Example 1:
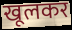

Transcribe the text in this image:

खूलकर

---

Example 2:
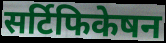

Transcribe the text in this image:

सर्टिफिकेषन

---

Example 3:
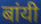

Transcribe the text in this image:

बांयी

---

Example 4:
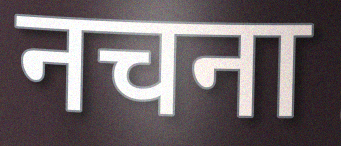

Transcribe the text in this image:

नचना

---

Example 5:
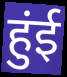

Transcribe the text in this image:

हुंई